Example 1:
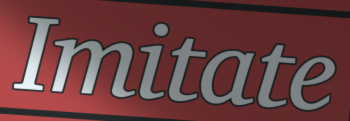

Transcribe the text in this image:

Imitate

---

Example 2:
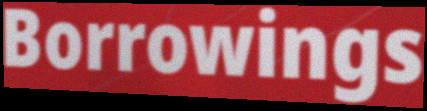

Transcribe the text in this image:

Borrowings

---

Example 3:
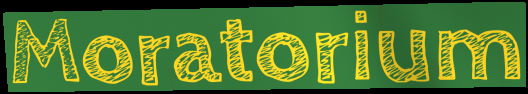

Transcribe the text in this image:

Moratorium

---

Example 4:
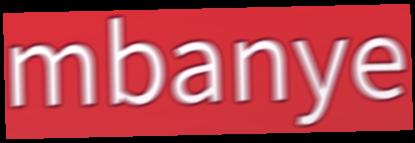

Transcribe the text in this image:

mbanye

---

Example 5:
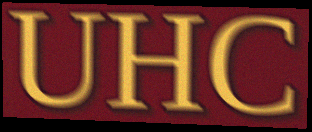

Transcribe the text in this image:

UHC